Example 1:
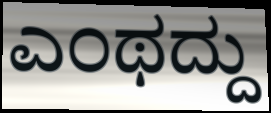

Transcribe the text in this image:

ಎಂಥದ್ದು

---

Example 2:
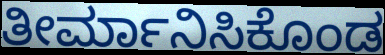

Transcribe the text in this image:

ತೀರ್ಮಾನಿಸಿಕೊಂಡ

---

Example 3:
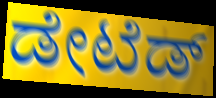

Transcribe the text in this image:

ಡೇಟೆಡ್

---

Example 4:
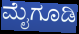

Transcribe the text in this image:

ಮೈಗೂಡಿ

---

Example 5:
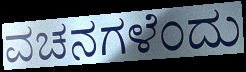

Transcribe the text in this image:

ವಚನಗಳೆಂದು